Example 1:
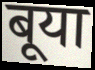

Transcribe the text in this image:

बूया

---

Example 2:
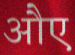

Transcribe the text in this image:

औए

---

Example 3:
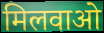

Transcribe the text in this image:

मिलवाओ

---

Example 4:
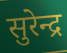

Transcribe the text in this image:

सुरेन्द्र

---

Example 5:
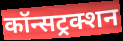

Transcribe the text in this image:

कॉन्सट्रक्शन